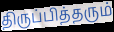
திருப்பித்தரும்